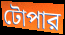
টোপার